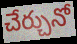
చేర్చునో